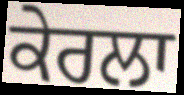
ਕੇਰਲਾ